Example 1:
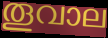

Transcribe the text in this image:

തൂവാല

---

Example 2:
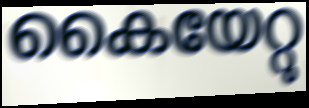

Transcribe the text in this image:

കൈയേറ്റു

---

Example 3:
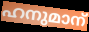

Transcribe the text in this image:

ഹനുമാന്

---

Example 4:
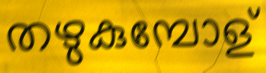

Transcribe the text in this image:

തഴുകുമ്പോള്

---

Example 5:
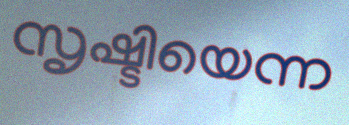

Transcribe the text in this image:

സൃഷ്ടിയെന്ന